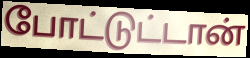
போட்டுட்டான்